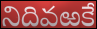
నిదివఱకే